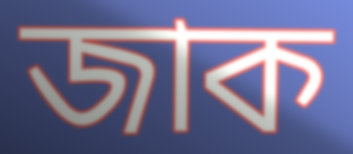
জাক